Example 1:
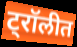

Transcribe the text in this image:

ट्रॉलीत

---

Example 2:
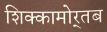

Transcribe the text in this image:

शिक्‍कामोर्तब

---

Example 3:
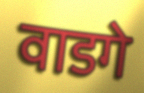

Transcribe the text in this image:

वाडगे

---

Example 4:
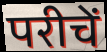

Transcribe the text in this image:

परीचें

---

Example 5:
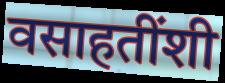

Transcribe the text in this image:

वसाहतींशी